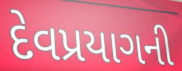
દેવપ્રયાગની